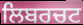
ਲਿਬਰਚਟ